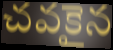
చవకైన